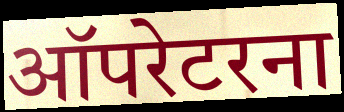
ऑपरेटरना